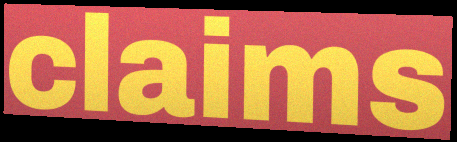
claims